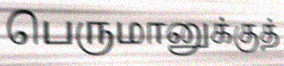
பெருமானுக்குத்